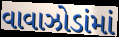
વાવાઝોડાંમાં